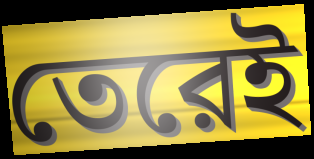
তেরেই